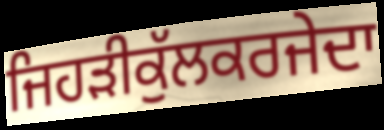
ਜਿਹੜੀਕੁੱਲਕਰਜੇਦਾ